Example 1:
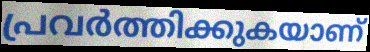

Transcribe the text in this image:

പ്രവർത്തിക്കുകയാണ്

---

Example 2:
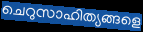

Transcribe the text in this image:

ചെറുസാഹിത്യങ്ങളെ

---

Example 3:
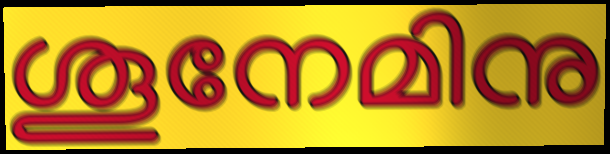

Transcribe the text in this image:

ശൂനേമിനു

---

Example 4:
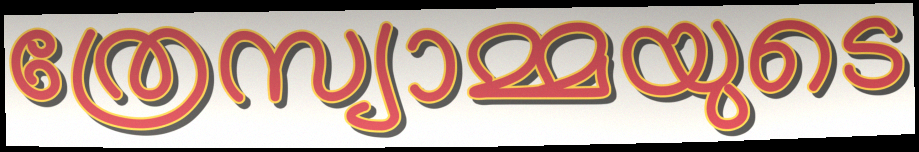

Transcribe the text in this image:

ത്രേസ്യാമ്മയുടെ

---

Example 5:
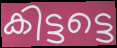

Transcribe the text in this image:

കിട്ടട്ടെ